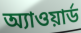
অ্যাওয়ার্ড